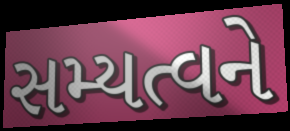
સમ્યત્વને